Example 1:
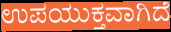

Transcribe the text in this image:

ಉಪಯುಕ್ತವಾಗಿದೆ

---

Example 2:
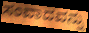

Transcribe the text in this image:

ಸಂವಾದವನ್ನು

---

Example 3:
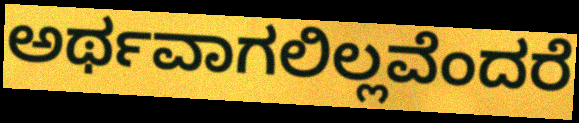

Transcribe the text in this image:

ಅರ್ಥವಾಗಲಿಲ್ಲವೆಂದರೆ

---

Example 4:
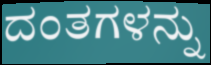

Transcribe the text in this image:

ದಂತಗಳನ್ನು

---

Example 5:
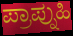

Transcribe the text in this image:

ಪ್ರಾಪ್ನುಹಿ